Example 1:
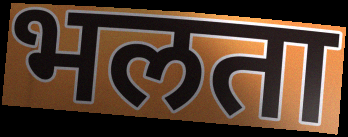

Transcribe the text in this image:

भलता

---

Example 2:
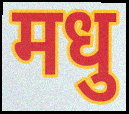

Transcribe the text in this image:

मधु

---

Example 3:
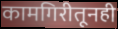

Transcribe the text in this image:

कामगिरीतूनही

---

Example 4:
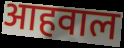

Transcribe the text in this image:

आहवाल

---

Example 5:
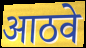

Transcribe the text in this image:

आठवे